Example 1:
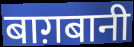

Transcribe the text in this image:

बाग़बानी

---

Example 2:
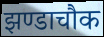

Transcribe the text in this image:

झण्डाचौक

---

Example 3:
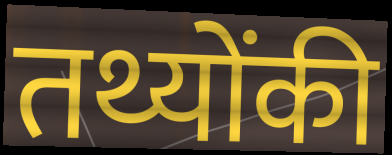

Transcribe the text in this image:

तथ्योंकी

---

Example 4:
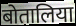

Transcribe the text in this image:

बोतालिया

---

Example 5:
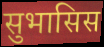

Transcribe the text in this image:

सुभासिस